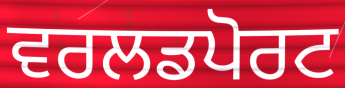
ਵਰਲਡਪੋਰਟ